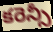
కరెన్సీ